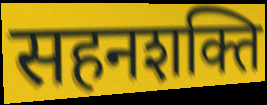
सहनशक्ति